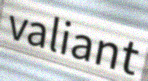
valiant